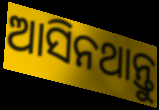
ଆସିନଥାନ୍ତୁ